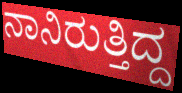
ನಾನಿರುತ್ತಿದ್ದ